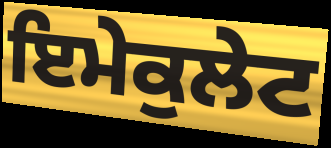
ਇਮੇਕੁਲੇਟ